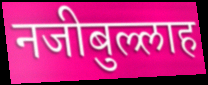
नजीबुल्लाह